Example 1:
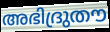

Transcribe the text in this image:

അഭിദ്രുതൗ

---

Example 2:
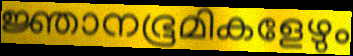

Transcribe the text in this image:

ജ്ഞാനഭൂമികളേഴും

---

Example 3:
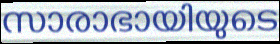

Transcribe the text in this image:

സാരാഭായിയുടെ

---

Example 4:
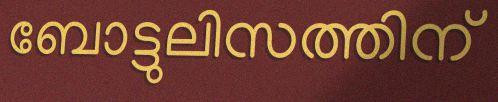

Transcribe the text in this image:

ബോട്ടുലിസത്തിന്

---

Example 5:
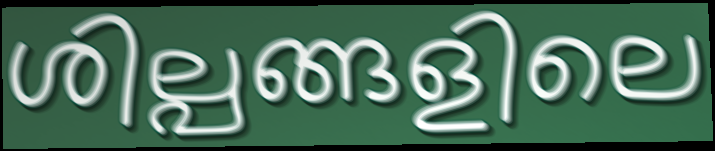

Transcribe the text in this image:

ശില്പങ്ങളിലെ